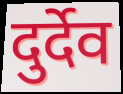
दुर्देव